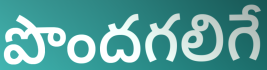
పొందగలిగే